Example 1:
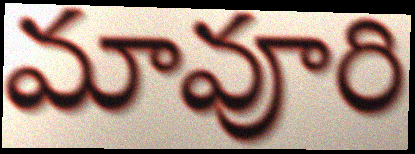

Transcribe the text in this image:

మావూరి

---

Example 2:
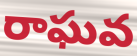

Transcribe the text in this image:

రాఘవ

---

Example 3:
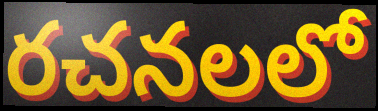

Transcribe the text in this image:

రచనలలో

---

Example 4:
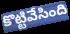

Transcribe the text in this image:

కొట్టివేసింది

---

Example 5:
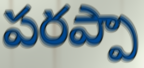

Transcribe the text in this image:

పరప్పా